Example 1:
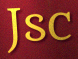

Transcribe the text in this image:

Jsc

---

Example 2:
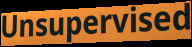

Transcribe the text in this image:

Unsupervised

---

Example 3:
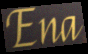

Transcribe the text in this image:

Ena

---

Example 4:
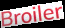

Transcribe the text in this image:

Broiler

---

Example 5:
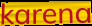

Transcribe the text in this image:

karena